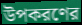
উপকরণের